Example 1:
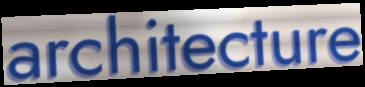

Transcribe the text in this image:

architecture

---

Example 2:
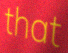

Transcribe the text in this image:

that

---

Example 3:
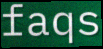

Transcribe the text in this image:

faqs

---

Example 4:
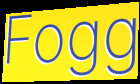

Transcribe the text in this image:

Fogg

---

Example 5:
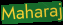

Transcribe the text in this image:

Maharaj